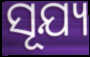
ସୂଯ୍ୟ